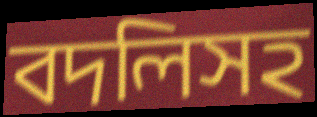
বদলিসহ